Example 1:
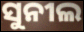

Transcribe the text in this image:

ସୁନୀଲ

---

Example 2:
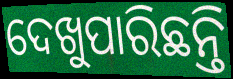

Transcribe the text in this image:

ଦେଖୁପାରିଛନ୍ତି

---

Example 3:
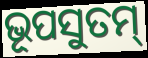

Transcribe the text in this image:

ଭୂପସୁତମ୍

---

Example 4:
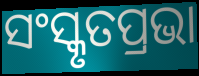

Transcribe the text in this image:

ସଂସ୍କୃତପ୍ରଭା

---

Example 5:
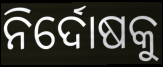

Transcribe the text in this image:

ନିର୍ଦୋଷକୁ